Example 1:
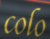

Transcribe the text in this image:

colo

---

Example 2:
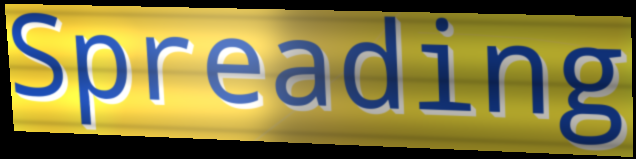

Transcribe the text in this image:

Spreading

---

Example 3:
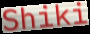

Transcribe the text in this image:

Shiki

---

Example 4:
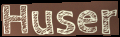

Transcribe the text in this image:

Huser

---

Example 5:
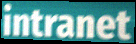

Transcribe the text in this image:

intranet